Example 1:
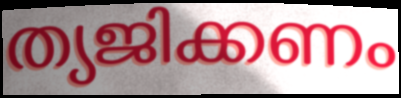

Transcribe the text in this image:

ത്യജിക്കണം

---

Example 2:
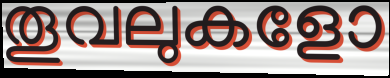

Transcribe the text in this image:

തൂവലുകളോ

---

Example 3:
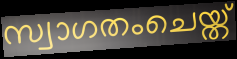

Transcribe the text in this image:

സ്വാഗതംചെയ്ത്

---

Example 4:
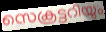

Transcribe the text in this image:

സെക്രട്ടറിയും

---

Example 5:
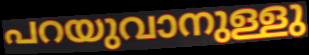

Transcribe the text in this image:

പറയുവാനുള്ളു